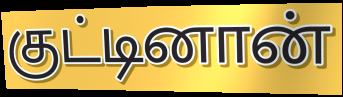
குட்டினான்